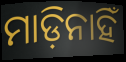
ମାଡ଼ିନାହିଁ